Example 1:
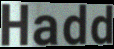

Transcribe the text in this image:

Hadd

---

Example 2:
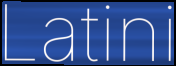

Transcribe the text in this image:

Latini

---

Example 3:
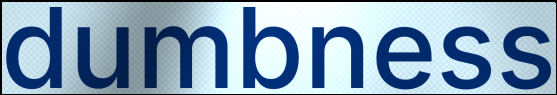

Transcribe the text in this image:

dumbness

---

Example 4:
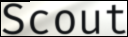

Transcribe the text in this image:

Scout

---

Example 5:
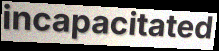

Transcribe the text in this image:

incapacitated